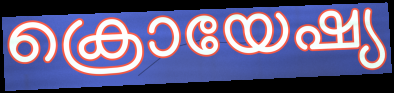
ക്രൊയേഷ്യ